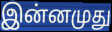
இன்னமுது